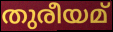
തുരീയമ്